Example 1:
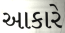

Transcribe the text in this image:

આકારે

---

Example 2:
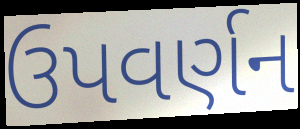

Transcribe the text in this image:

ઉપવર્ણન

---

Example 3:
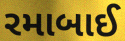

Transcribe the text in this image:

રમાબાઈ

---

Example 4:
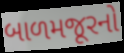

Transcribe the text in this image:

બાળમજૂરનો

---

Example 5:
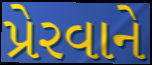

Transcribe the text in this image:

પ્રેરવાને